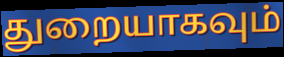
துறையாகவும்